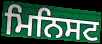
ਮਿਨਿਸਟ